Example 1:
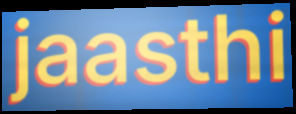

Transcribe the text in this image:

jaasthi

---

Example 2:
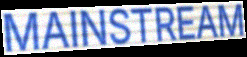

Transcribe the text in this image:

MAINSTREAM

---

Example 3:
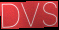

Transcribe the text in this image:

DVS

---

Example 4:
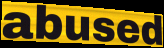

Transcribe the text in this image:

abused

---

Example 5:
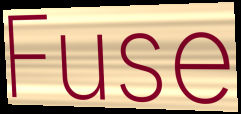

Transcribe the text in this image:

Fuse